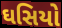
ઘસિયો